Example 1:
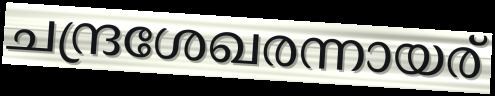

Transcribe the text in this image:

ചന്ദ്രശേഖരന്നായര്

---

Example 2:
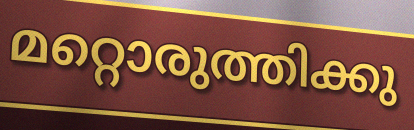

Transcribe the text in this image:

മറ്റൊരുത്തിക്കു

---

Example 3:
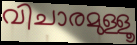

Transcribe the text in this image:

വിചാരമുള്ളൂ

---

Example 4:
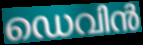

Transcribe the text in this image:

ഡെവിൻ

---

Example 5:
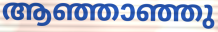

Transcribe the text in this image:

ആഞ്ഞാഞ്ഞു